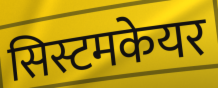
सिस्टमकेयर